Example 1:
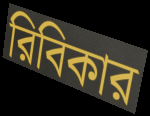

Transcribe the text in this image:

রিবিকার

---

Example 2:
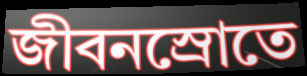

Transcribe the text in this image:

জীবনস্রোতে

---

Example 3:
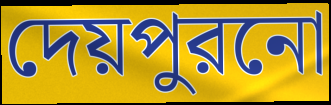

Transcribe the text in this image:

দেয়পুরনো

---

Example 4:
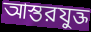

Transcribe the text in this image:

আস্তরযুক্ত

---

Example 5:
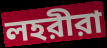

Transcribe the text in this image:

লহরীরা